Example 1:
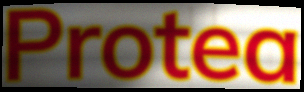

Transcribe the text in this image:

Protea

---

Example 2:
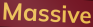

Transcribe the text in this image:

Massive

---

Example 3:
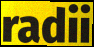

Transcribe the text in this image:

radii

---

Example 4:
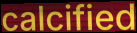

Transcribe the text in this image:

calcified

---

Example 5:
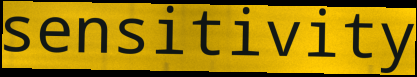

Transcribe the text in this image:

sensitivity